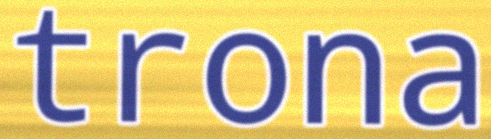
trona